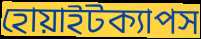
হোয়াইটক্যাপস